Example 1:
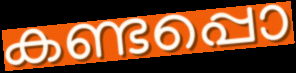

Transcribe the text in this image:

കണ്ടപ്പൊ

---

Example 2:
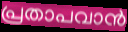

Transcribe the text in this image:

പ്രതാപവാൻ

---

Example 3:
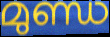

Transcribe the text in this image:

മുണ്ഡ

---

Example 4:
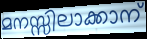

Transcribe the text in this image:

മനസ്സിലാക്കാന്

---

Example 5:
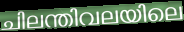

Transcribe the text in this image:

ചിലന്തിവലയിലെ